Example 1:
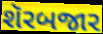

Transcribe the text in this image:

શૅરબજાર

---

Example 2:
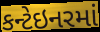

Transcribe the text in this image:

કન્ટેઇનરમાં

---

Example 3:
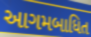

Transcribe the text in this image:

આગમબાધિત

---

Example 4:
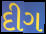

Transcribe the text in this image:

દીગ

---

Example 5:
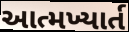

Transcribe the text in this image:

આત્મખ્યાર્ત